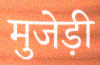
मुजेड़ी